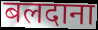
बलदाना